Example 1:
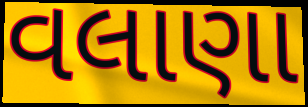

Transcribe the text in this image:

વલાણા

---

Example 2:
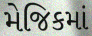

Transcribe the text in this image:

મેજિકમાં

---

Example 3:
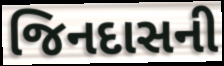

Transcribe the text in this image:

જિનદાસની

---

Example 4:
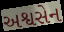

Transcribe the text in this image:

અશ્વસેન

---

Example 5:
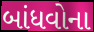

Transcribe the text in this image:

બાંધવોના